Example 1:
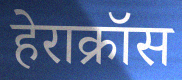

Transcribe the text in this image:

हेराक्रॉस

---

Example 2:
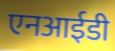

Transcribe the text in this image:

एनआईडी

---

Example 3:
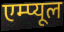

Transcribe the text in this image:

एम्प्यूल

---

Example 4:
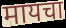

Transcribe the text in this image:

मायचा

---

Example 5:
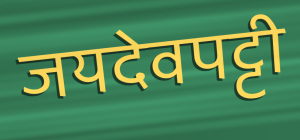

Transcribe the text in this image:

जयदेवपट्टी